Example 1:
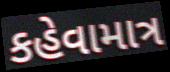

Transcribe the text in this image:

કહેવામાત્ર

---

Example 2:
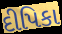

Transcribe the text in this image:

દીપિકા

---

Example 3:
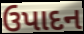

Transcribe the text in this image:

ઉપાદન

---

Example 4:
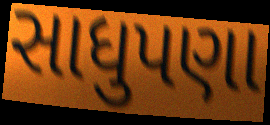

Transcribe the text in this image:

સાધુપણા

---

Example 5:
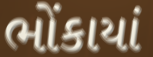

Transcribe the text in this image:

ભોંકાયાં